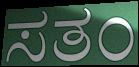
ಸತಂ